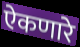
ऐकणारे